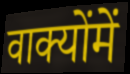
वाक्योंमें